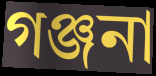
গঞ্জনা